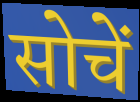
सोचें